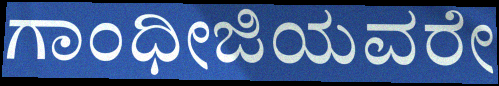
ಗಾಂಧೀಜಿಯವರೇ